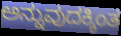
ಅನ್ನುವುದಕ್ಕಿಂತ